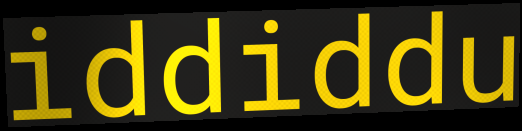
iddiddu